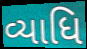
વ્યાધિ